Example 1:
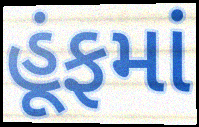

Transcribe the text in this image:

હૂંફમાં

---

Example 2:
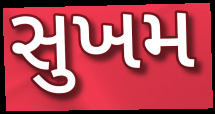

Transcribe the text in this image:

સુખમ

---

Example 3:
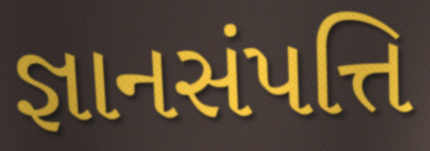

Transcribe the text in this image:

જ્ઞાનસંપત્તિ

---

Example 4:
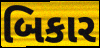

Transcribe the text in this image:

બિકાર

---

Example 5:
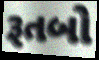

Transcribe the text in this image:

રૂતબો